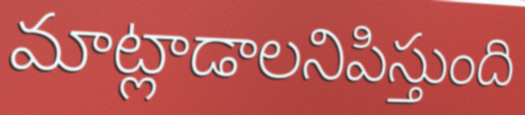
మాట్లాడాలనిపిస్తుంది